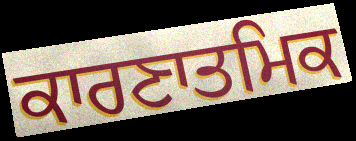
ਕਾਰਣਾਤਮਿਕ